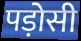
पड़ोसी